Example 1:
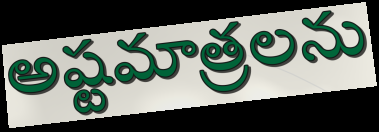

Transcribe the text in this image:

అష్టమాత్రలను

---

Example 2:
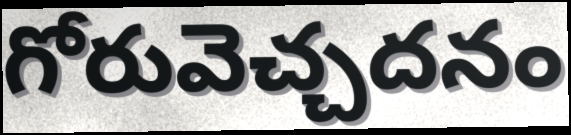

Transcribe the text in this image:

గోరువెచ్చదనం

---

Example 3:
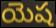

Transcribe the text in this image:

యెష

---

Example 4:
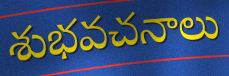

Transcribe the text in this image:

శుభవచనాలు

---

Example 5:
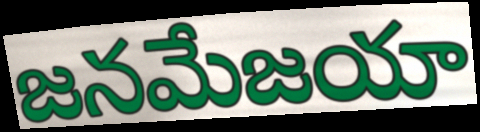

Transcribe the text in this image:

జనమేజయా